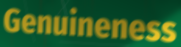
Genuineness